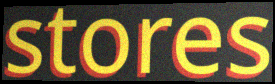
stores